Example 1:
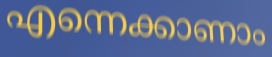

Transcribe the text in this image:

എന്നെക്കാണാം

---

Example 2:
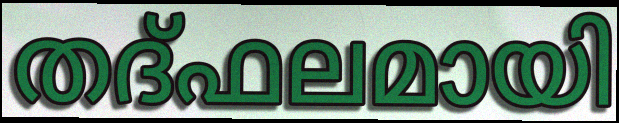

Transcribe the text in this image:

തദ്ഫലമായി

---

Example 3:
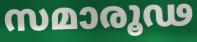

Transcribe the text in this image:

സമാരൂഢ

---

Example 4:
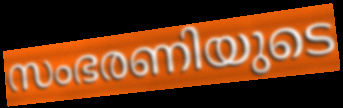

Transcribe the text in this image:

സംഭരണിയുടെ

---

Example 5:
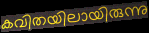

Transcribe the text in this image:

കവിതയിലായിരുന്നു